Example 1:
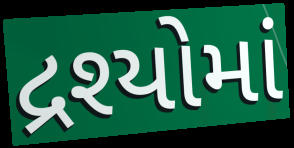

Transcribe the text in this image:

દ્રશ્યોમાં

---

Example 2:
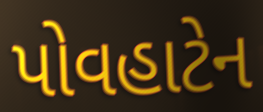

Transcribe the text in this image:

પોવહાટેન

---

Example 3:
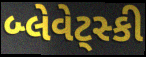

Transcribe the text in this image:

બ્લેવેટ્સ્કી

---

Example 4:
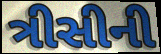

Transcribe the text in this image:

ત્રીસીની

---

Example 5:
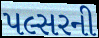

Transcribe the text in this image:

પલ્સરની